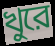
খুরে